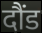
दौंड